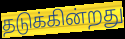
தடுக்கின்றது